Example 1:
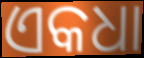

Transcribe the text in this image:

ଏକଧା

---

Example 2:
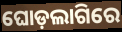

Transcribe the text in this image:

ଘୋଡ଼ଲାଗିରେ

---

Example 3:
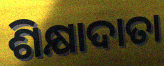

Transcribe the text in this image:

ଶିକ୍ଷାଦାତା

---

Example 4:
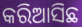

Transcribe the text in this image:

କରିଆସିଛ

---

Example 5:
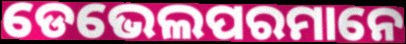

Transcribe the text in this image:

ଡେଭେଲପରମାନେ